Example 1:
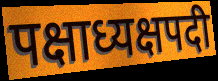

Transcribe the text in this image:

पक्षाध्यक्षपदी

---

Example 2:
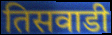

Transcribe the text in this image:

तिसवाडी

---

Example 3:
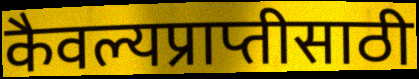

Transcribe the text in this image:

कैवल्यप्राप्तीसाठी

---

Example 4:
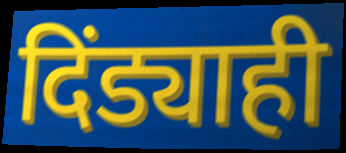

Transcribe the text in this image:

दिंड्याही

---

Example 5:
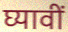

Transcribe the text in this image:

घ्यावीं